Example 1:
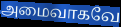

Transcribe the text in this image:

அமைவாகவே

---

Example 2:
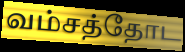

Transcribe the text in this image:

வம்சத்தோட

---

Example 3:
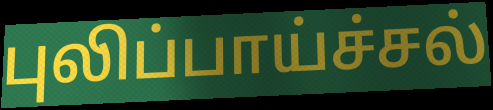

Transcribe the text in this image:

புலிப்பாய்ச்சல்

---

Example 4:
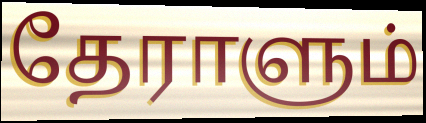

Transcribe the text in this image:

தேராளும்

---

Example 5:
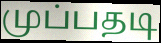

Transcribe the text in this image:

முப்பதடி